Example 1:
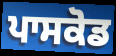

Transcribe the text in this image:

ਪਾਸਕੋਡ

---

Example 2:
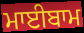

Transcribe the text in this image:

ਮਾਈਬਾਮ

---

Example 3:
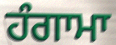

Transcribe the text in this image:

ਹੰਗਾਮਾ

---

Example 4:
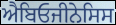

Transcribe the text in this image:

ਐਬਿਓਜੀਨੇਸਿਸ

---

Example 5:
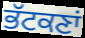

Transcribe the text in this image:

ਭੱਟਕਣਾਂ